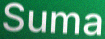
Suma